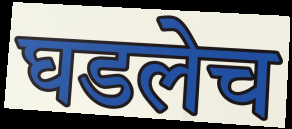
घडलेच